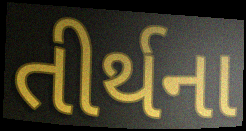
તીર્થના